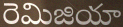
రెమిజియా